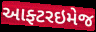
આફ્ટરઇમેજ